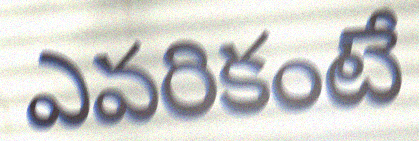
ఎవరికంటే